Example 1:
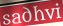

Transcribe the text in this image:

sadhvi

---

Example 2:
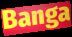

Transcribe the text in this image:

Banga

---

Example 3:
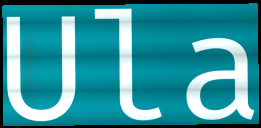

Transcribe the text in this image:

Ula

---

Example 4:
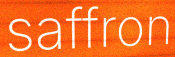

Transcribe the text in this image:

saffron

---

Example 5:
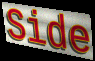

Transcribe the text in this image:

Side